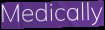
Medically